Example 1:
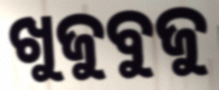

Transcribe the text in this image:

ଖୁଜୁବୁଜୁ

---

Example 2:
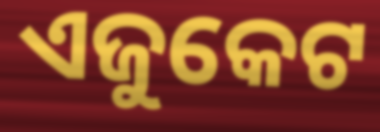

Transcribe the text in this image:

ଏଜୁକେଟ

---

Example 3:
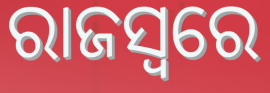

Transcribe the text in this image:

ରାଜସ୍ବରେ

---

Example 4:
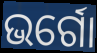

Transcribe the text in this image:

ଭର୍ଗୋ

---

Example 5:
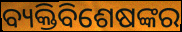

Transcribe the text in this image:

ବ୍ୟକ୍ତିବିଶେଷଙ୍କର